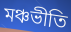
মঞ্চভীতি